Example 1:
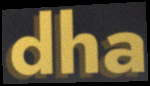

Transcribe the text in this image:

dha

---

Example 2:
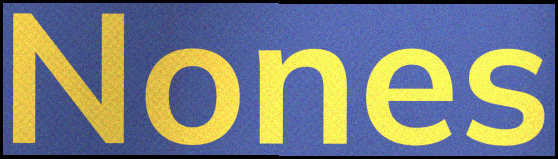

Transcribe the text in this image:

Nones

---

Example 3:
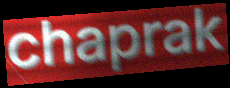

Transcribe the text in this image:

chaprak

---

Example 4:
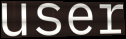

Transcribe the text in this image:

user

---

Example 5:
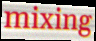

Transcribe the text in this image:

mixing